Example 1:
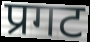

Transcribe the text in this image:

प्रगट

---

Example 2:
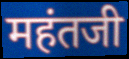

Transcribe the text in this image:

महंतजी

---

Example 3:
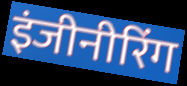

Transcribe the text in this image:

इंजीनीरिंग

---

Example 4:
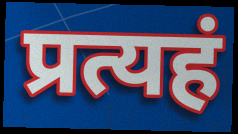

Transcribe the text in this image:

प्रत्यहं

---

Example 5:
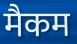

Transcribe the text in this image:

मैकम